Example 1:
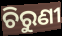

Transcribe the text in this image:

ଚିରୁଣୀ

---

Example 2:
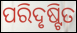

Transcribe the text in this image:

ପରିଦୃଷ୍ଟିତ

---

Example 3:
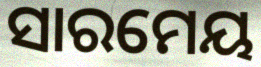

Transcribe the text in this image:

ସାରମେୟ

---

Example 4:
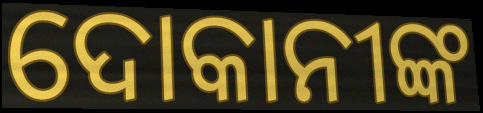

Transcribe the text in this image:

ଦୋକାନୀଙ୍କ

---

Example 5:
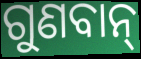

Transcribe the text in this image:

ଗୁଣବାନ୍